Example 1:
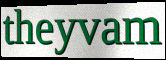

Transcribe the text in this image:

theyvam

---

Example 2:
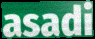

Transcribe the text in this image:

asadi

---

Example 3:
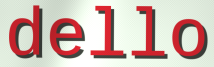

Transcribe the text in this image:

dello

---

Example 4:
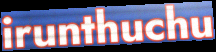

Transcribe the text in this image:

irunthuchu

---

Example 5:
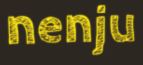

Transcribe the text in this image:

nenju